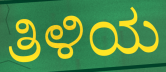
ತಿಳಿಯ